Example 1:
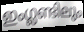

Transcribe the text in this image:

ഇംഗ്ലണ്ടിലും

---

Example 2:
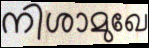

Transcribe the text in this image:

നിശാമുഖേ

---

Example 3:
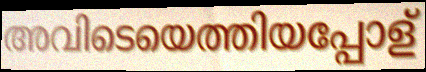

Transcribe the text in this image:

അവിടെയെത്തിയപ്പോള്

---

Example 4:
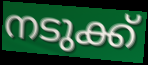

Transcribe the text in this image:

നടുക്ക്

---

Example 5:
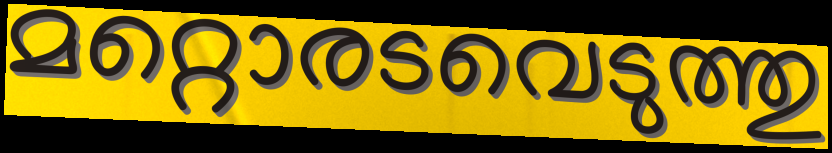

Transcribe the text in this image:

മറ്റൊരടവെടുത്തു